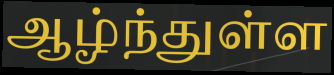
ஆழ்ந்துள்ள